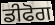
ਡੀਫੋਗ